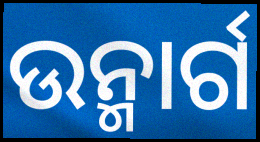
ଉନ୍ମାର୍ଗ